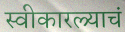
स्वीकारल्याचं